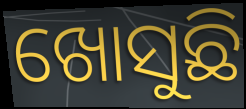
ଖୋସୁଛି